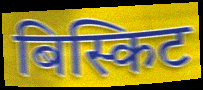
बिस्किट